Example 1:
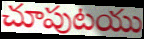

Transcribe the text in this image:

చూపుటయు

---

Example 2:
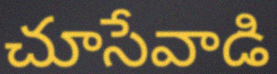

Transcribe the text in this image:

చూసేవాడి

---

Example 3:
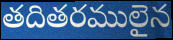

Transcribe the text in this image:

తదితరములైన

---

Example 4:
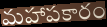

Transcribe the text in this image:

మహాపకారం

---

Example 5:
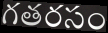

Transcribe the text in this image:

గతరసం